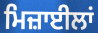
ਮਿਜ਼ਾਈਲਾਂ